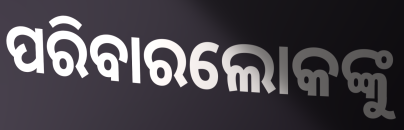
ପରିବାରଲୋକଙ୍କୁ